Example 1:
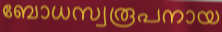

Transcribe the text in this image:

ബോധസ്വരൂപനായ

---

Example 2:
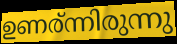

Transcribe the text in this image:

ഉണര്ന്നിരുന്നു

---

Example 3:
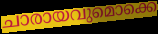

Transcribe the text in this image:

ചാരായവുമൊക്കെ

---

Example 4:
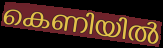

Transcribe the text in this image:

കെണിയിൽ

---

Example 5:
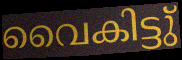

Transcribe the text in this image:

വൈകിട്ടു്